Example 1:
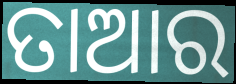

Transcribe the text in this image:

ତାଆର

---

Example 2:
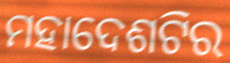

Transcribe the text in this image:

ମହାଦେଶଟିର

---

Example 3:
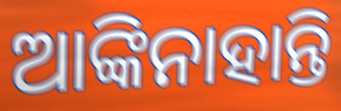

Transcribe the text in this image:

ଆଙ୍କିନାହାନ୍ତି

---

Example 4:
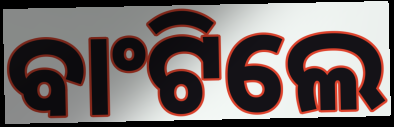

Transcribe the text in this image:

ବାଂଟିଲେ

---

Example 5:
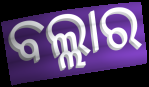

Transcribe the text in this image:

ବଲ୍ଲାର